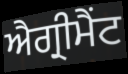
ਐਗ੍ਰੀਮੈਂਟ